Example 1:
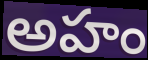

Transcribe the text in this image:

అహం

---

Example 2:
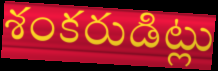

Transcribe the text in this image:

శంకరుడిట్లు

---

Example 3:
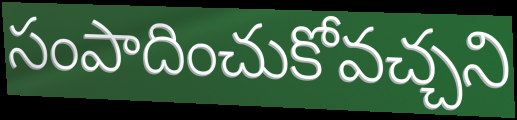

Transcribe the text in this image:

సంపాదించుకోవచ్చని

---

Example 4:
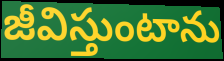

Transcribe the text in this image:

జీవిస్తుంటాను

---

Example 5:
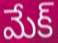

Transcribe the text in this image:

మేక్